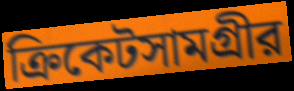
ক্রিকেটসামগ্রীর